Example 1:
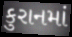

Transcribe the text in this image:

કુરાનમાં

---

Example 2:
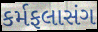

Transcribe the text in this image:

કર્મફલાસંગ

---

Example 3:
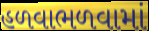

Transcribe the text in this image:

હળવાભળવામાં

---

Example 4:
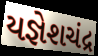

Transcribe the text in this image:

યજ્ઞેશચંદ્ર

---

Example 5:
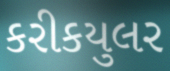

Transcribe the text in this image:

કરીકયુલર